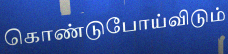
கொண்டுபோய்விடும்